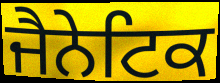
ਜੈਨੇਟਿਕ